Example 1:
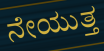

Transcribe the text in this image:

ನೇಯುತ್ತ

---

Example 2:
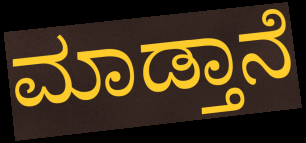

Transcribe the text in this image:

ಮಾಡ್ತಾನೆ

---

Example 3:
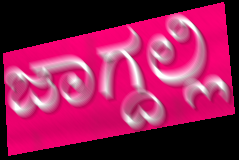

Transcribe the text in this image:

ಜಾಗ್ದಲ್ಲಿ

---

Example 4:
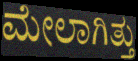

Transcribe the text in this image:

ಮೇಲಾಗಿತ್ತು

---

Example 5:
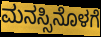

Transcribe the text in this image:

ಮನಸ್ಸಿನೊಳಗೆ